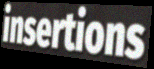
insertions